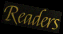
Readers